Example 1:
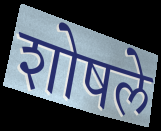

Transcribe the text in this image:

शोषले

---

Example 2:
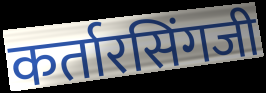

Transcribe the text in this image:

कर्तारसिंगजी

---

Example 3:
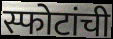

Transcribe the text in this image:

स्फोटांची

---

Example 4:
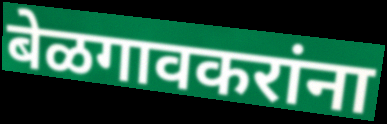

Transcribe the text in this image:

बेळगावकरांना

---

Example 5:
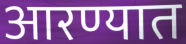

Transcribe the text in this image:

आरण्यात